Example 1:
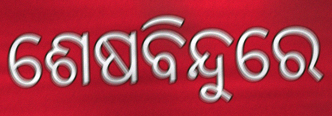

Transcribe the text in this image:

ଶେଷବିନ୍ଦୁରେ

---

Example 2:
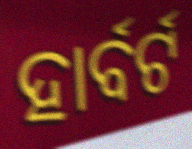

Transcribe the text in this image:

ହାର୍ବର୍ଟ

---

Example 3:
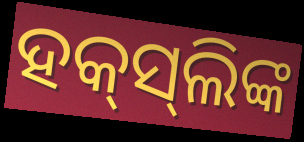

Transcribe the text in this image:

ହକ୍‌ସ୍‌ଲିଙ୍କ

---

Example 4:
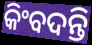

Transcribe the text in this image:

କିଂବଦନ୍ତି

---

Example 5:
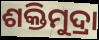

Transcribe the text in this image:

ଶକ୍ତିମୁଦ୍ରା